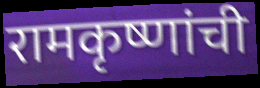
रामकृष्णांची